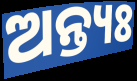
ଅନ୍ତ୍ୟଃ